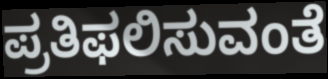
ಪ್ರತಿಫಲಿಸುವಂತೆ